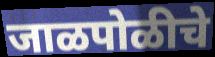
जाळपोळीचे